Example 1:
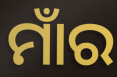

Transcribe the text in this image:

ମାଁର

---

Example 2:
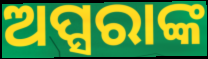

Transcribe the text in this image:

ଅପ୍ସରାଙ୍କ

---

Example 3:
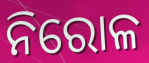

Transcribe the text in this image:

ନିରୋଳ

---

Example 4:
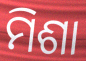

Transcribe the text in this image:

ମିଶା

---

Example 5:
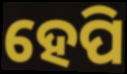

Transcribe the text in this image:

ହେପି